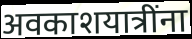
अवकाशयात्रींना